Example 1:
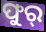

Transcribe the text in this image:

ଫୁର୍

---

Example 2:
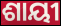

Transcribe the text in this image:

ଶାୟୀ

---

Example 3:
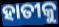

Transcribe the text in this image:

ହାତୀକୁ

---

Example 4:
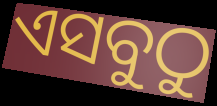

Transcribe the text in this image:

ଏସବୁଠୁ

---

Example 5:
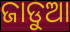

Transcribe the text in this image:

ଜାଡୁଆ